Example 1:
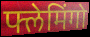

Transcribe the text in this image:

फ्लेमिंगो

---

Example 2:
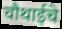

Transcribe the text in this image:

चौथाईचे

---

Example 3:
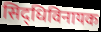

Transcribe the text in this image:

सिद्धिविनायक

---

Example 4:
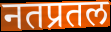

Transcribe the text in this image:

नतप्रतल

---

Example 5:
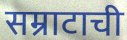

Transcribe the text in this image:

सम्राटाची